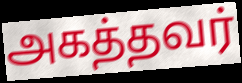
அகத்தவர்